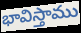
భావిస్తాము